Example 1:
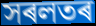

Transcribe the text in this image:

সৰলতৰ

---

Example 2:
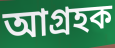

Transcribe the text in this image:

আগ্ৰহক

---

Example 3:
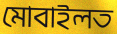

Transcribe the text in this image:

মোবাইলত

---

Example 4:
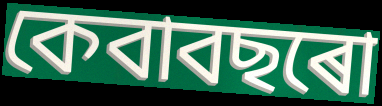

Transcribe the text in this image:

কেবাবছৰো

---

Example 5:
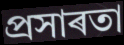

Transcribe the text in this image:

প্ৰসাৰতা